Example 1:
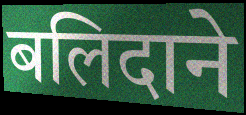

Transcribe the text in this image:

बलिदाने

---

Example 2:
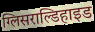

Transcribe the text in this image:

ग्लिसराल्डिहाइड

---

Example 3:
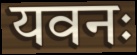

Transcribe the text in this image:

यवनः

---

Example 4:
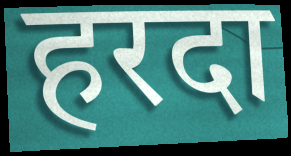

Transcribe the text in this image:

हरदा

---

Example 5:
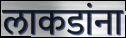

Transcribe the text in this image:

लाकडांना